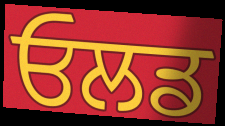
ਓਲਡ